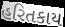
હરિતકાય